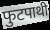
फुटपाथी